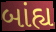
બાંહ્ય